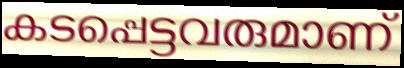
കടപ്പെട്ടവരുമാണ്